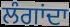
ਲੰਗਾਂਦਾ